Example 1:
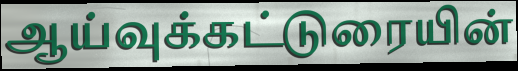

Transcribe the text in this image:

ஆய்வுக்கட்டுரையின்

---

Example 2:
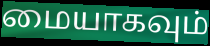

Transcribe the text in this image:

மையாகவும்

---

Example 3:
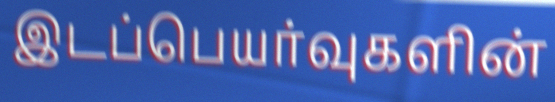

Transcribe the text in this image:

இடப்பெயர்வுகளின்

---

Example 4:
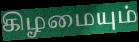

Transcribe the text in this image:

கிழமையும்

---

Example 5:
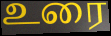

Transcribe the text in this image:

உரை